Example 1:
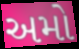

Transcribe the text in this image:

અમો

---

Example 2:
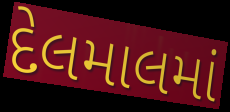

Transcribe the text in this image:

દેલમાલમાં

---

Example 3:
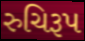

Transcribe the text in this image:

રુચિરૂપ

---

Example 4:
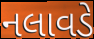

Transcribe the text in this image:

નલાવડે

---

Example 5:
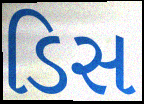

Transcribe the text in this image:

ડિસ